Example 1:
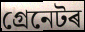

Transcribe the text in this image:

গ্ৰেনেটৰ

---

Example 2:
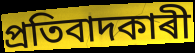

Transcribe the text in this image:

প্ৰতিবাদকাৰী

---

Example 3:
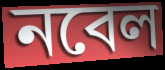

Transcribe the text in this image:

নবেল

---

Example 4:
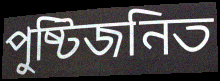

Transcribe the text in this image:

পুষ্টিজনিত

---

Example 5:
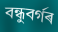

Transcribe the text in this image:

বন্ধুবৰ্গৰ